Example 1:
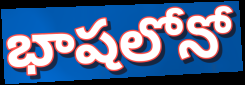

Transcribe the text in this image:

భాషలోనో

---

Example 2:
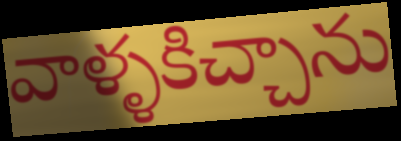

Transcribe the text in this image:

వాళ్ళకిచ్చాను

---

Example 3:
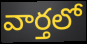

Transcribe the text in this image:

వార్తలో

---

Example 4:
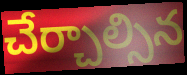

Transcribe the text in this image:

చేర్చాల్సిన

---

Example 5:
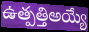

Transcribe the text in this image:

ఉత్పత్తిఅయ్యే